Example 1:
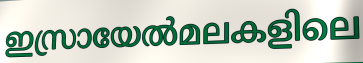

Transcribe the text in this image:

ഇസ്രായേൽമലകളിലെ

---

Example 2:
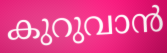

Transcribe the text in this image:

കുറുവാൻ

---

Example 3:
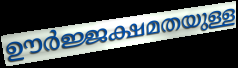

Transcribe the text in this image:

ഊർജ്ജക്ഷമതയുള്ള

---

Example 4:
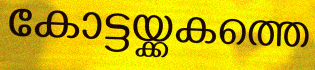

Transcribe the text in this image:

കോട്ടയ്ക്കകത്തെ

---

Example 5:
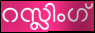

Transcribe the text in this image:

റസ്ലിംഗ്